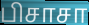
பிசாசா